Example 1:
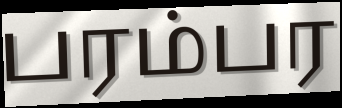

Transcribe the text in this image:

பரம்பர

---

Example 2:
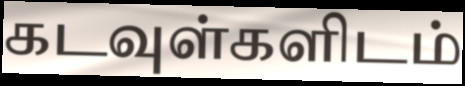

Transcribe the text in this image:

கடவுள்களிடம்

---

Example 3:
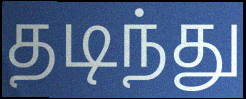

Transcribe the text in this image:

தடிந்து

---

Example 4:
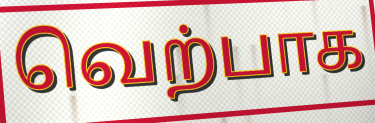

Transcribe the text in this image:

வெற்பாக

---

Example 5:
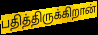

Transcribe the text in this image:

பதித்திருக்கிறான்